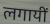
लगायीं